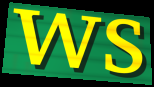
ws